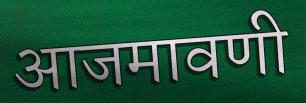
आजमावणी